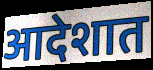
आदेशात